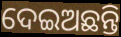
ଦେଇଅଛନ୍ତି